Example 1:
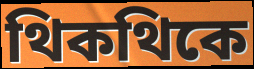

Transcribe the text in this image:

থিকথিকে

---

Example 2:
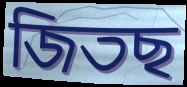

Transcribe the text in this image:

জিতছ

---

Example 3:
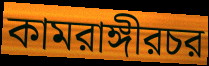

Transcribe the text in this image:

কামরাঙ্গীরচর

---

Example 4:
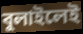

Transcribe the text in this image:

বুলাইলেই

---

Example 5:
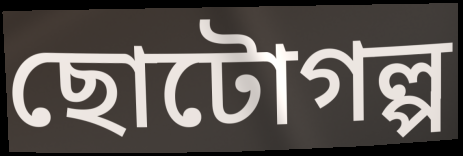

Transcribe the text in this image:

ছোটোগল্প